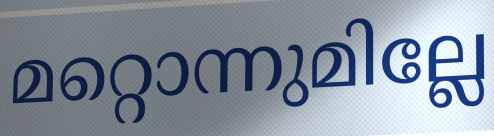
മറ്റൊന്നുമില്ലേ